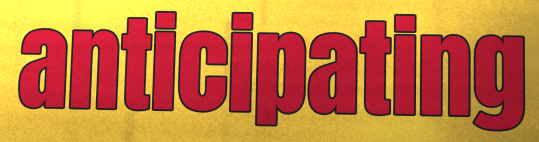
anticipating